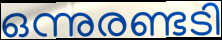
ഒന്നുരണ്ടടി